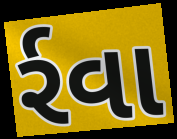
ર્રવા